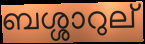
ബശ്ശാറുല്